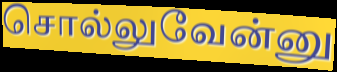
சொல்லுவேன்னு